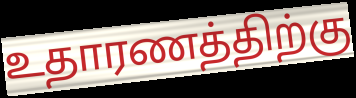
உதாரணத்திற்கு